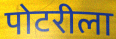
पोटरीला